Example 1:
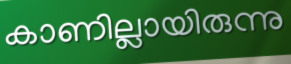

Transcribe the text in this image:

കാണില്ലായിരുന്നു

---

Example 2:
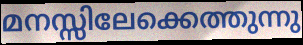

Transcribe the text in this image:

മനസ്സിലേക്കെത്തുന്നു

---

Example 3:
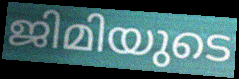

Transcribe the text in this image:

ജിമിയുടെ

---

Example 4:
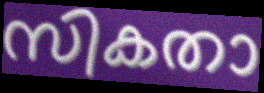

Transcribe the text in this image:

സികതാ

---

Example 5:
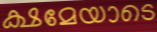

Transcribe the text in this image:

ക്ഷമേയാടെ